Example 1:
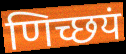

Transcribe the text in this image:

णिच्छयं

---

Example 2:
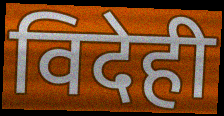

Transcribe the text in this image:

विदेही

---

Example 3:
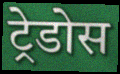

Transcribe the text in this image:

ट्रेडोस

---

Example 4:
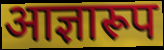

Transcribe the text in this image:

आज्ञारूप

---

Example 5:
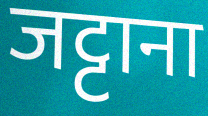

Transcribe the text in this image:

जट्टाना